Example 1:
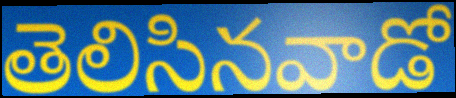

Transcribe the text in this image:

తెలిసినవాడో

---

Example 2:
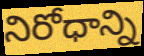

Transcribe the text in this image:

నిరోధాన్ని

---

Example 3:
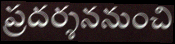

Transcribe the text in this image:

ప్రదర్శననుంచి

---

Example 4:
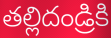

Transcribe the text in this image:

తల్లిదండ్రికి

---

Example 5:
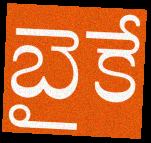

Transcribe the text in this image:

బైకే